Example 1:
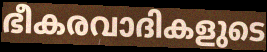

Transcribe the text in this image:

ഭീകരവാദികളുടെ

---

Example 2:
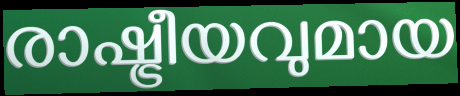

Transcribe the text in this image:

രാഷ്ട്രീയവുമായ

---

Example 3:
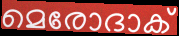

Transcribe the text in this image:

മെരോദാക്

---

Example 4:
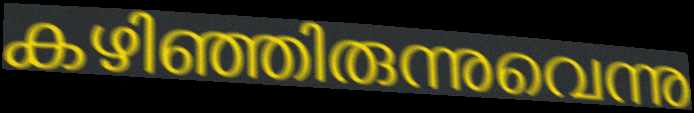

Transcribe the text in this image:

കഴിഞ്ഞിരുന്നുവെന്നു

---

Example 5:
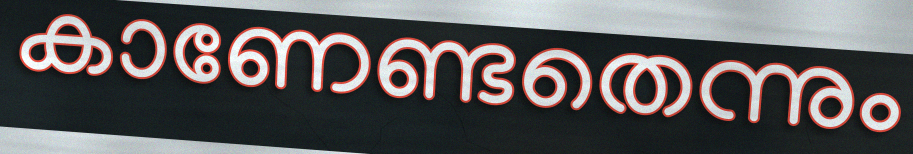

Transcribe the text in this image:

കാണേണ്ടതെന്നും